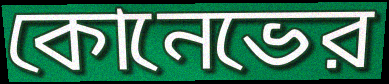
কোনেভের